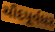
ચૌદપૂર્વધર